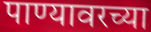
पाण्यावरच्या